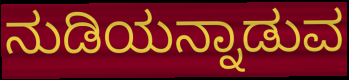
ನುಡಿಯನ್ನಾಡುವ